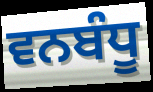
ਵਨਬੰਧੂ